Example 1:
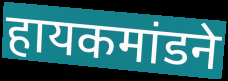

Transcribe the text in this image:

हायकमांडने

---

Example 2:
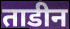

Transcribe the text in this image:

ताडीन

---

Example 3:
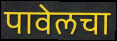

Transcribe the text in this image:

पावेलचा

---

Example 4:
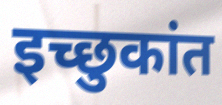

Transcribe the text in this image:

इच्छुकांत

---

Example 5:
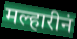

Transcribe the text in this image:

मल्हारीनं